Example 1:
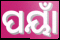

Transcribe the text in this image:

ପୟାଁ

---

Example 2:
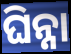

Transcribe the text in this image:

ଘିନ୍ନା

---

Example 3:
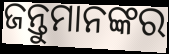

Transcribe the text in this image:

ଜନ୍ତୁମାନଙ୍କର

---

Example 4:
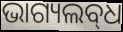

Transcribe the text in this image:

ଭାଗ୍ୟଲବ୍‌ଧ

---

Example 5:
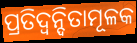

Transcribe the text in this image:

ପ୍ରତିଦ୍ୱନ୍ଦିତାମୂଳକ